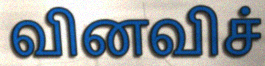
வினவிச்